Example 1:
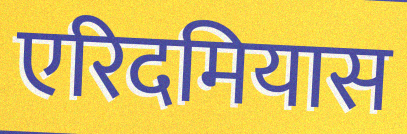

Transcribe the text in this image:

एरिदमियास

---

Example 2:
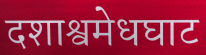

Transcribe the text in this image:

दशाश्वमेधघाट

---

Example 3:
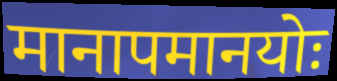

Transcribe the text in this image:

मानापमानयोः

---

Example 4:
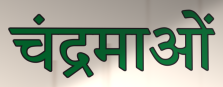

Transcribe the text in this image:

चंद्रमाओं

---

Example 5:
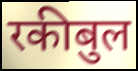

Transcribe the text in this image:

रकीबुल